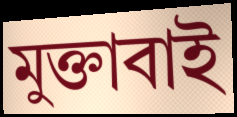
মুক্তাবাই